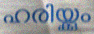
ഹരിയ്ക്കും